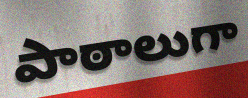
పాఠాలుగా